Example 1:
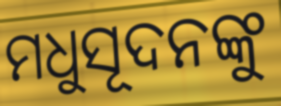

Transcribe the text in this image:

ମଧୁସୂଦନଙ୍କୁ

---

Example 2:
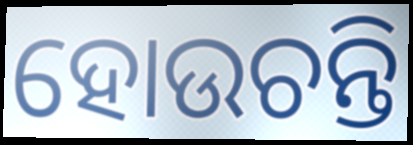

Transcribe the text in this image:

ହୋଉଚନ୍ତି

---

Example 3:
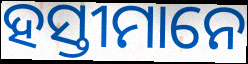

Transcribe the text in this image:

ହସ୍ତୀମାନେ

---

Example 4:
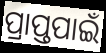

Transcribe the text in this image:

ପ୍ରାପ୍ତପାଇଁ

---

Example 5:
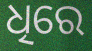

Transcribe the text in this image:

ଧିରେ